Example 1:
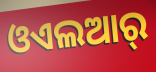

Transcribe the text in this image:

ଓଏଲଆର୍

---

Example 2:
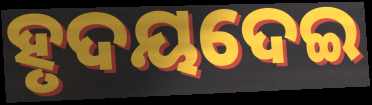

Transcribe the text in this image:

ହୃଦୟଦେଇ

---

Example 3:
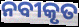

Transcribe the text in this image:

ନବୀକୃତ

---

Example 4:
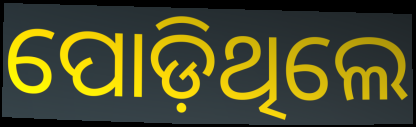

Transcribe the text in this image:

ପୋଡ଼ିଥିଲେ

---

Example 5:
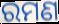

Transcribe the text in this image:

ରମଣ